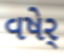
વષેર્